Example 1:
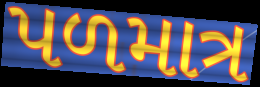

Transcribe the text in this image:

પળમાત્ર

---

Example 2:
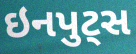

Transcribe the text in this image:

ઇનપુટ્સ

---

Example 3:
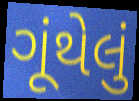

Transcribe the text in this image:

ગૂંથેલું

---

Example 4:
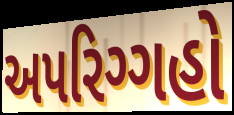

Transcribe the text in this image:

અપરિગ્ગહો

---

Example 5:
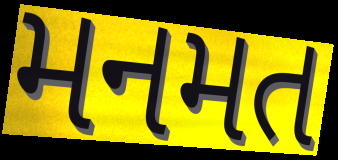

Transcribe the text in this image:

મનમત